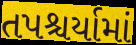
તપશ્ચર્યામાં